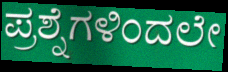
ಪ್ರಶ್ನೆಗಳಿಂದಲೇ